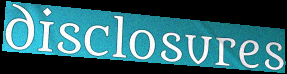
disclosures